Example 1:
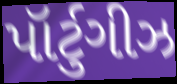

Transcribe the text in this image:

પૉર્ટુગીઝ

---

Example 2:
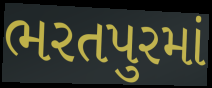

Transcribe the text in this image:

ભરતપુરમાં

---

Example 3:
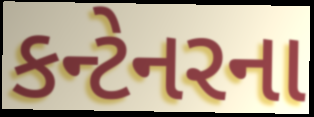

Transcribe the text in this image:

કન્ટેનરના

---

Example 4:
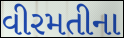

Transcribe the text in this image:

વીરમતીના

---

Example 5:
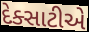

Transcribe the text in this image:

દેક્સાટીએ